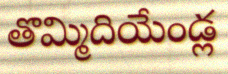
తొమ్మిదియేండ్ల